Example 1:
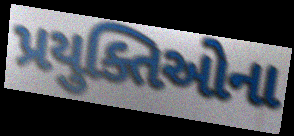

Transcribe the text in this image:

પ્રયુક્તિઓના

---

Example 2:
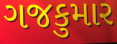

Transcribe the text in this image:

ગજકુમાર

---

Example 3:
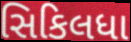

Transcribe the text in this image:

સિકિલધા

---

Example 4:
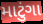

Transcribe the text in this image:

માટુંગા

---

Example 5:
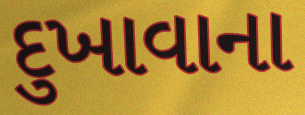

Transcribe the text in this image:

દુખાવાના